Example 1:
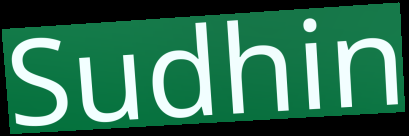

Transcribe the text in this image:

Sudhin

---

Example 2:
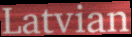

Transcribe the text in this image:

Latvian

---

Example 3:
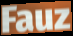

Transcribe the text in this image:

Fauz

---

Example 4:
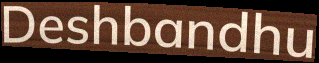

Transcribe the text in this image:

Deshbandhu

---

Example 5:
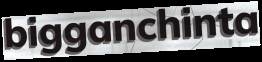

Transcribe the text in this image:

bigganchinta